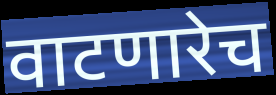
वाटणारेच